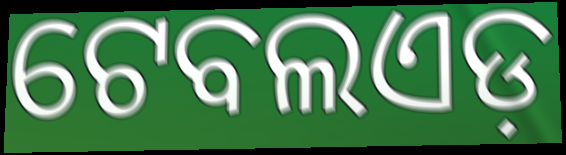
ଟେବଲଏଡ଼